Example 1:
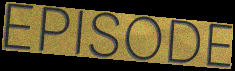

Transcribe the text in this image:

EPISODE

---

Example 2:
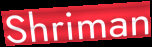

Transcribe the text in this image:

Shriman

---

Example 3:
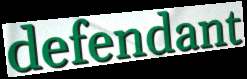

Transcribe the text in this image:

defendant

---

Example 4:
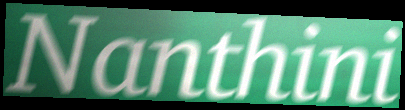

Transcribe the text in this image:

Nanthini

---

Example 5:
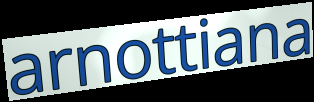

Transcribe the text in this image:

arnottiana